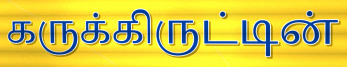
கருக்கிருட்டின்